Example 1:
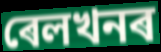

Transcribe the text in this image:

ৰেলখনৰ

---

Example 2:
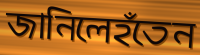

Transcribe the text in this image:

জানিলেহঁতেন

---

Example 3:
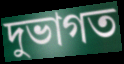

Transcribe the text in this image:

দুভাগত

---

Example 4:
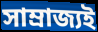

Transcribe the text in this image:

সাম্ৰাজ্যই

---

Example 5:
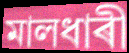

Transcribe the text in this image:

মালধাৰী